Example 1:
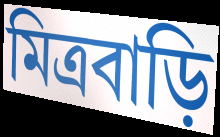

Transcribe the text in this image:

মিত্রবাড়ি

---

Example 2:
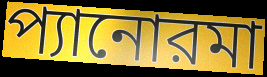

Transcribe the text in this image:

প্যানোরমা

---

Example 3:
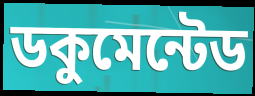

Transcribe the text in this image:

ডকুমেন্টেড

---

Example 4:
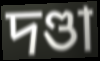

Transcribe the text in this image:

দণ্ডা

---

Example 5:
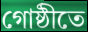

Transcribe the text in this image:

গোষ্ঠীতে